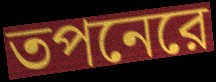
তপনেরে